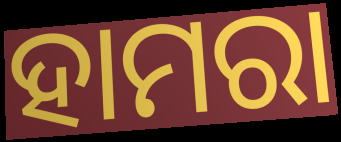
ହାମରା